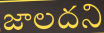
జాలదని